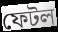
ফেটল